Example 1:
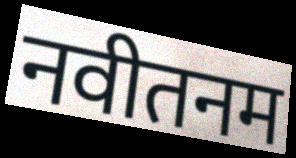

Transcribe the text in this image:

नवीतनम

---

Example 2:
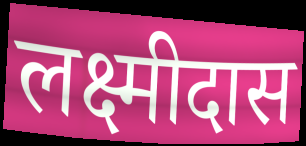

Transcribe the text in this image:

लक्ष्मीदास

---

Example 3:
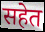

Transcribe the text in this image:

सहेत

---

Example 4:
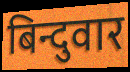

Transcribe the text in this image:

बिन्‍दुवार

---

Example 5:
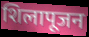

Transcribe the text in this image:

शिलापूजन